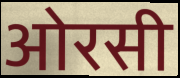
ओरसी